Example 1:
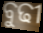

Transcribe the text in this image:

ବୁଢୀ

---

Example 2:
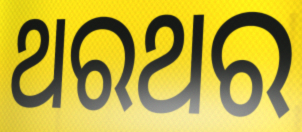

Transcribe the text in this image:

ଥରଥର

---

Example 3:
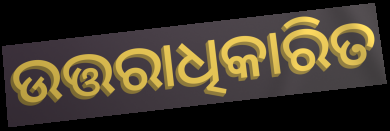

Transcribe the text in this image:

ଉତ୍ତରାଧିକାରିତ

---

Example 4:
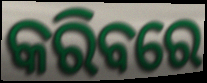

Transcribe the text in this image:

କରିବରେ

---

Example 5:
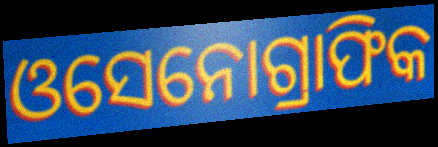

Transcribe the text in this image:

ଓସେନୋଗ୍ରାଫିକ